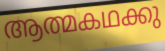
ആത്മകഥക്കു